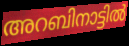
അറബിനാട്ടിൽ